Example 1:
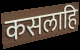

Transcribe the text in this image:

कसलाहि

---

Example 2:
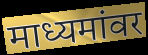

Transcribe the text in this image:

माध्यमांवर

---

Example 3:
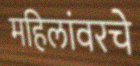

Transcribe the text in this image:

महिलांवरचे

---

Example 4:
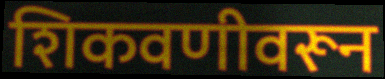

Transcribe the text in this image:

शिकवणीवरून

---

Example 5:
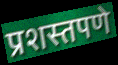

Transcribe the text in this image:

प्रशस्तपणे